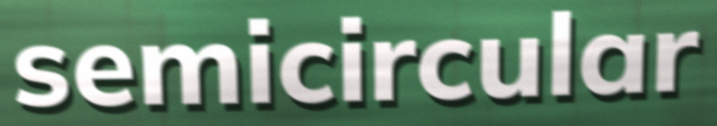
semicircular